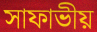
সাফাভীয়